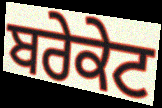
ਬਰੇਕੇਟ